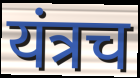
यंत्रच